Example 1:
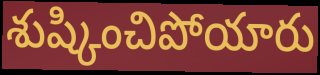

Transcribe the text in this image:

శుష్కించిపోయారు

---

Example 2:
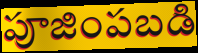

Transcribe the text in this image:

పూజింపబడి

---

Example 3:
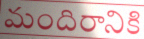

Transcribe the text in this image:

మందిరానికి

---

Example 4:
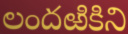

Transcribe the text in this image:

లందఱికిని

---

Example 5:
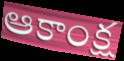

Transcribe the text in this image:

ఆకాంక్ష